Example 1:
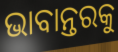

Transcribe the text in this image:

ଭାବାନ୍ତରକୁ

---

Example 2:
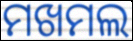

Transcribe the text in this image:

ମଖମଲ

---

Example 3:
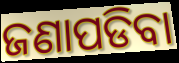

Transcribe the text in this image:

ଜଣାପଡିବା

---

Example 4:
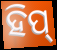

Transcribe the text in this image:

ହିପ୍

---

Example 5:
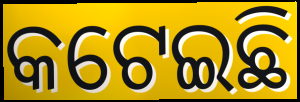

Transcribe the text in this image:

କଟେଇଛି